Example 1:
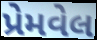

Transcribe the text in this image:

પ્રેમવેલ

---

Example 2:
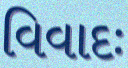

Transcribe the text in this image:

વિવાદઃ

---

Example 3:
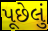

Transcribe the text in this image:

પૂછેલું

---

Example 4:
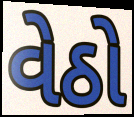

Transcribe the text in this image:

વેઠો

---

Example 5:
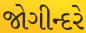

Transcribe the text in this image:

જોગીન્દરે